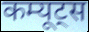
कम्यूट्स